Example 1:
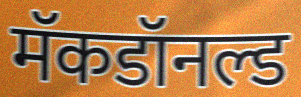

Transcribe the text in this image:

मॅकडॉनल्ड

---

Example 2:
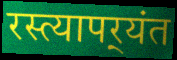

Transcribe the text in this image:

रस्त्यापर्यंत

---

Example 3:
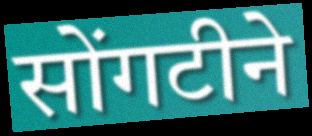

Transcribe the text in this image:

सोंगटीने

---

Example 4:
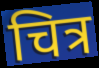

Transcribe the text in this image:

चित्र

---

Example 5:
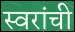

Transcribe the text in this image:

स्वरांची